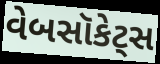
વેબસૉકેટ્સ